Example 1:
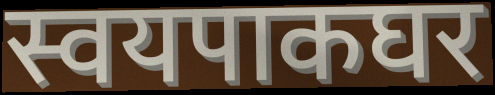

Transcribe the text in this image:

स्वयपाकघर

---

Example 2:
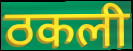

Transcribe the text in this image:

ठकली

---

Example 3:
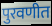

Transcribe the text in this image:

पुरवणीत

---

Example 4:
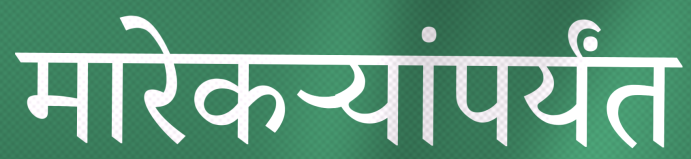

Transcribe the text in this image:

मारेकऱ्यांपर्यंत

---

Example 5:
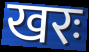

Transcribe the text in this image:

खरः